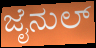
ಜೈನುಲ್